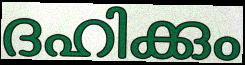
ദഹിക്കും